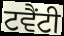
ਟਵੈਂਟੀ